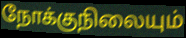
நோக்குநிலையும்